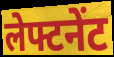
लेफ्टनेंट